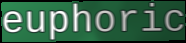
euphoric